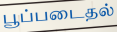
பூப்படைதல்